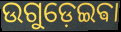
ଉଗୁଡ଼େଇଵା